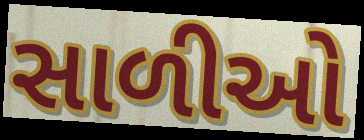
સાળીઓ